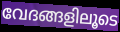
വേദങ്ങളിലൂടെ